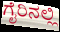
ಗೈರಿನಲ್ಲಿ